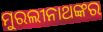
ମୁରଲୀନାଥଙ୍କର